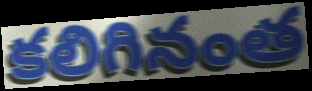
కలిగినంత